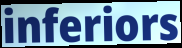
inferiors